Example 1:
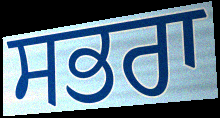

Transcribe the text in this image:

ਸਭਰਾ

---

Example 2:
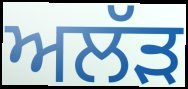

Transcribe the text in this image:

ਅਲੱੜ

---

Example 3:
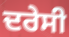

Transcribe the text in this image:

ਦਰੇਸੀ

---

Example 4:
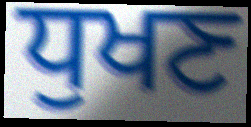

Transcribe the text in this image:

ਧੁਖਣ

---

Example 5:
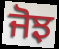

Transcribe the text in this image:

ਜੋਝ